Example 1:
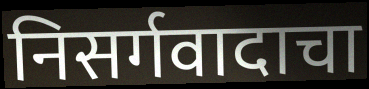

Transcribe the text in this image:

निसर्गवादाचा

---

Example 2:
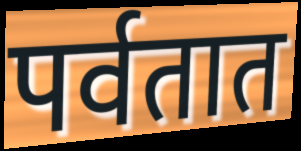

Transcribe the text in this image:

पर्वतात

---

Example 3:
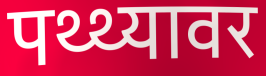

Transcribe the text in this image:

पथ्थ्यावर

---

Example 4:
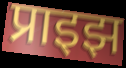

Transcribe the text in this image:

प्राइझ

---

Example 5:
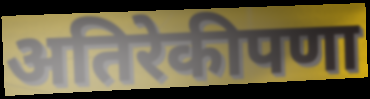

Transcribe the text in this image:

अतिरेकीपणा